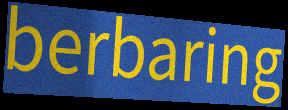
berbaring